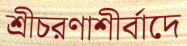
শ্রীচরণাশীর্বাদে